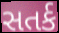
સતર્ક